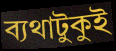
ব্যথাটুকুই